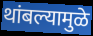
थांबल्यामुळे